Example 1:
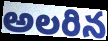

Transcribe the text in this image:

అలరిన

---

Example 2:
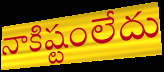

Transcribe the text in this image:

నాకిష్టంలేదు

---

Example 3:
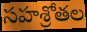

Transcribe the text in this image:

సహశ్రోతల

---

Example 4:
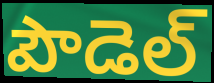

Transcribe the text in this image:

పౌడెల్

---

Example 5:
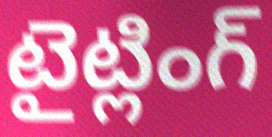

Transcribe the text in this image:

టైట్లింగ్